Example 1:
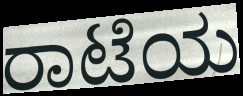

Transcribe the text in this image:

ರಾಟೆಯ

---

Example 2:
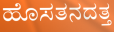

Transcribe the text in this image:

ಹೊಸತನದತ್ತ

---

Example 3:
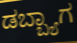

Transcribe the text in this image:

ಡಬ್ಬ್ಯಾಗ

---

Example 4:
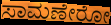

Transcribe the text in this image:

ಸಾಮಣೇರೋ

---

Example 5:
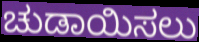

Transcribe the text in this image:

ಚುಡಾಯಿಸಲು